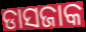
ଡାସଜାକ